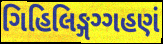
ગિહિલિઙ્ગગ્ગહણં